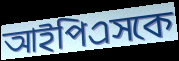
আইপিএসকে